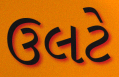
ઉલટે